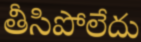
తీసిపోలేదు